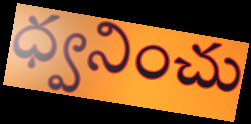
ధ్వనించు